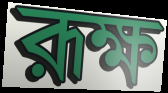
রূক্ষ